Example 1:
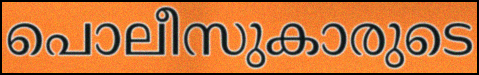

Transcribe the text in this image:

പൊലീസുകാരുടെ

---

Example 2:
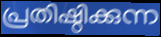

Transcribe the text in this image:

പ്രതിഷ്ഠിക്കുന്ന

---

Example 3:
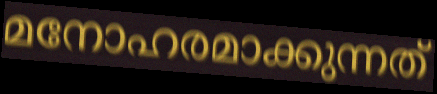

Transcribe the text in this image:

മനോഹരമാക്കുന്നത്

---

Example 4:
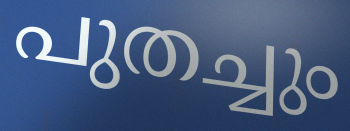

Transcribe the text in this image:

പുതച്ചും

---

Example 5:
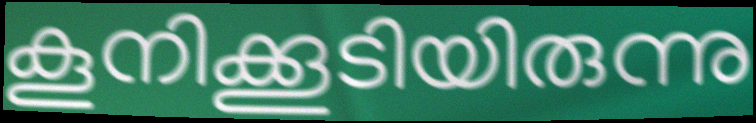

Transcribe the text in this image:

കൂനിക്കൂടിയിരുന്നു